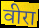
वीरा